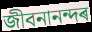
জীবনানন্দৰ